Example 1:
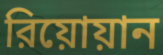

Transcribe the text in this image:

রিয়োয়ান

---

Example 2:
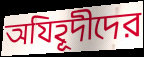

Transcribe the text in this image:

অযিহূদীদের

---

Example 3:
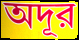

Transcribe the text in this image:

অদূর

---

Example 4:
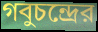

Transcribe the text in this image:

গবুচন্দ্রের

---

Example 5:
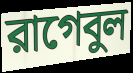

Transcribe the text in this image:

রাগেবুল